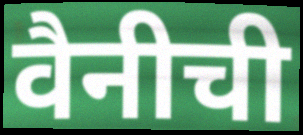
वैनीची